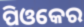
ପିଓକେର